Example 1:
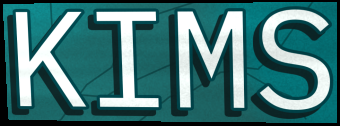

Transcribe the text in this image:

KIMS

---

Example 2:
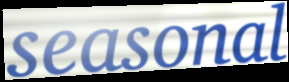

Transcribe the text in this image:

seasonal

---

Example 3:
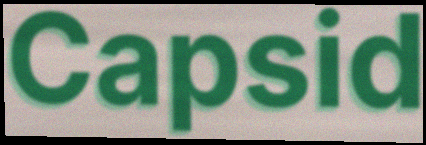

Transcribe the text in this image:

Capsid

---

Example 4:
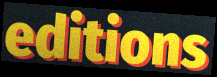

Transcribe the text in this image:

editions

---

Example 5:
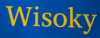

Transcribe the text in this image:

Wisoky